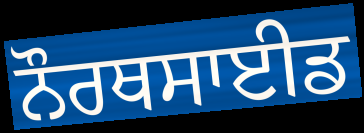
ਨੌਰਥਸਾਈਡ